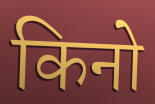
किनो